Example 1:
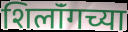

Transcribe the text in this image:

शिलॉंगच्या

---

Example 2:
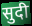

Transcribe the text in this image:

सुदी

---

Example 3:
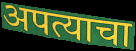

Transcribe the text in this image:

अपत्याचा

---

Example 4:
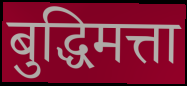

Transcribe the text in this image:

बुद्धिमत्ता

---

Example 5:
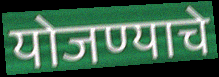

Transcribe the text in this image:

योजण्याचे